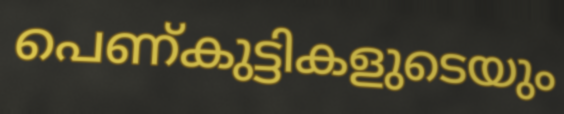
പെണ്കുട്ടികളുടെയും